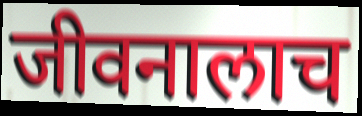
जीवनालाच